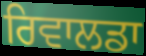
ਰਿਵਾਲਡਾ